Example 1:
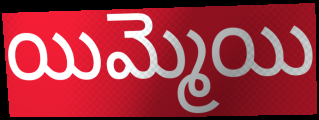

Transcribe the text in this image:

యిమ్మెయి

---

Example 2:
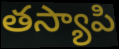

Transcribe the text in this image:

తస్యాపి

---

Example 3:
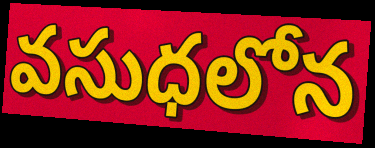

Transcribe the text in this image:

వసుధలోన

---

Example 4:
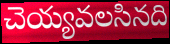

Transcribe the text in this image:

చెయ్యవలసినది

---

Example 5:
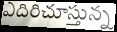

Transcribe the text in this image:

ఎదిరిచూస్తున్న